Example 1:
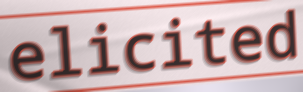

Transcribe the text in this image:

elicited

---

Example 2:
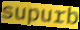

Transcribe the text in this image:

supurb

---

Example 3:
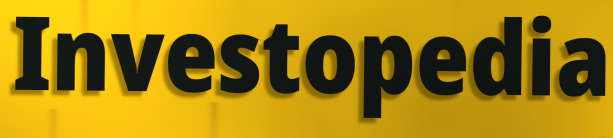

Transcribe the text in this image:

Investopedia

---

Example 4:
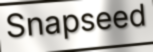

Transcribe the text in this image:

Snapseed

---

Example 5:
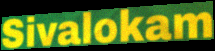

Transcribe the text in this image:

Sivalokam